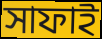
সাফাই